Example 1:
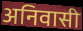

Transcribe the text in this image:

अनिवासी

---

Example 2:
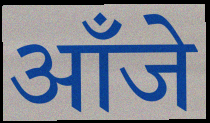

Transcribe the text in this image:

आँजे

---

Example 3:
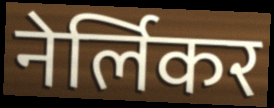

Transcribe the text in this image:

नेर्लिकर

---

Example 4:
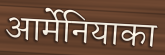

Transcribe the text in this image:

आर्मेनियाका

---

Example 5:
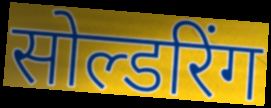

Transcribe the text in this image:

सोल्डरिंग